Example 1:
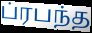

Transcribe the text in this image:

ப்ரபந்த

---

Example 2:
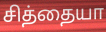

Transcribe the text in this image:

சித்தையா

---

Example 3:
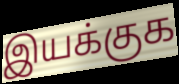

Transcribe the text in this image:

இயக்குக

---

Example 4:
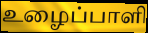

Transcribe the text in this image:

உழைப்பாளி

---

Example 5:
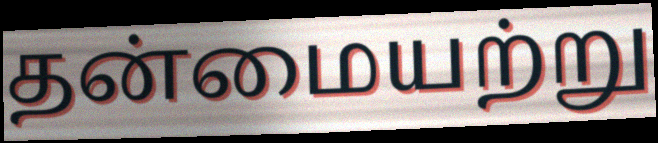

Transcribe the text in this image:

தன்மையற்று